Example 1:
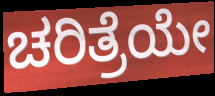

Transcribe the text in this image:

ಚರಿತ್ರೆಯೇ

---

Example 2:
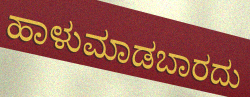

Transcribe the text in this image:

ಹಾಳುಮಾಡಬಾರದು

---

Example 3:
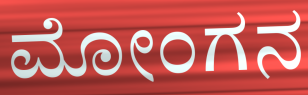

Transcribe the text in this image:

ಮೋಂಗನ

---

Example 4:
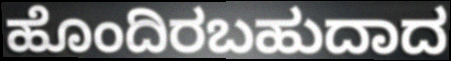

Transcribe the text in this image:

ಹೊಂದಿರಬಹುದಾದ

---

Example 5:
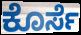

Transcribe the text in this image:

ಕೊರ್ಸೆ